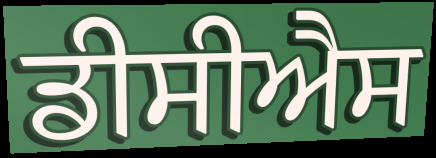
ਡੀਸੀਐਸ